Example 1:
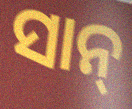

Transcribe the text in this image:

ସାନ୍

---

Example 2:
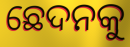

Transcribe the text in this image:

ଛେଦନକୁ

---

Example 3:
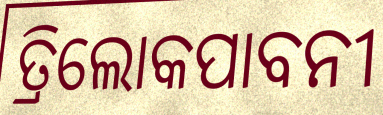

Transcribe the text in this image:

ତ୍ରିଲୋକପାବନୀ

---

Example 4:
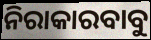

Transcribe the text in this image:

ନିରାକାରବାବୁ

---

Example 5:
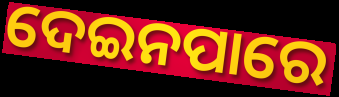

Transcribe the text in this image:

ଦେଇନପାରେ